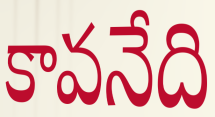
కావనేది